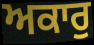
ਅਕਾਰੁ